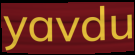
yavdu